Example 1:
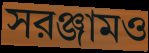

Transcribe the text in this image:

সরঞ্জামও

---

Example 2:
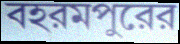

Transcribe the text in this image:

বহরমপুরের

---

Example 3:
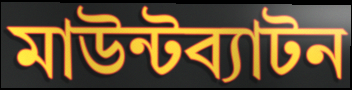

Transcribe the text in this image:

মাউন্টব্যাটন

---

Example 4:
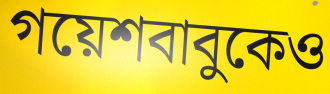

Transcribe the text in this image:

গয়েশবাবুকেও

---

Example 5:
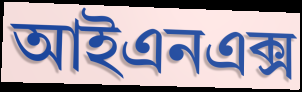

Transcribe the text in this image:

আইএনএক্স